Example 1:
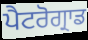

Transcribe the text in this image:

ਪੈਟਰੋਗ੍ਰਾਡ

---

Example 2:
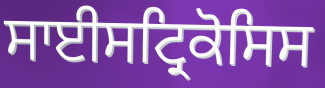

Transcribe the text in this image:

ਸਾਈਸਟ੍ਰਿਕੋਸਿਸ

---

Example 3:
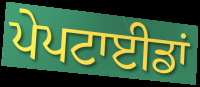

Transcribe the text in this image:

ਪੇਪਟਾਈਡਾਂ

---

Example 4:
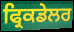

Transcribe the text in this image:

ਫ੍ਰਿਕਡੇਲਰ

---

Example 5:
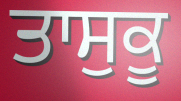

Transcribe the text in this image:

ਤਾਸੁਕੂ